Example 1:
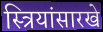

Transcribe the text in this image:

स्त्रियांसारखे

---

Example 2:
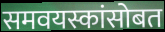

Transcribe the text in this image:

समवयस्कांसोबत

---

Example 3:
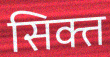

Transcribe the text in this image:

सिक्त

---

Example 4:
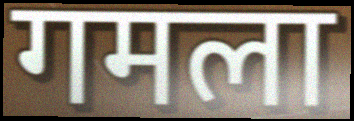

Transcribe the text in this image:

गमला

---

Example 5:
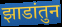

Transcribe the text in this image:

झाडांतुन